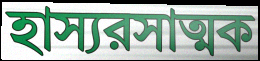
হাস্যরসাত্মক